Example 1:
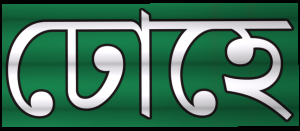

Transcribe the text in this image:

ঢোহে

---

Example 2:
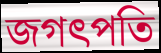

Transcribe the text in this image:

জগৎপতি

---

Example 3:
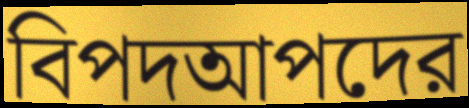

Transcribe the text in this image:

বিপদআপদের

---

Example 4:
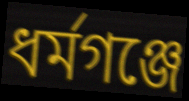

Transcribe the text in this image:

ধর্মগঞ্জে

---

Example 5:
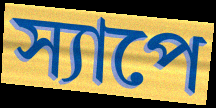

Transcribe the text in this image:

স্যাপে